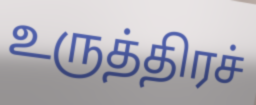
உருத்திரச்